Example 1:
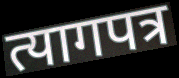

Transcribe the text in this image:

त्‍यागपत्र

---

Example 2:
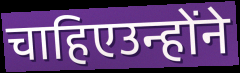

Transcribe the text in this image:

चाहिएउन्होंने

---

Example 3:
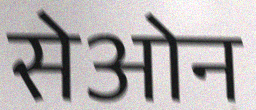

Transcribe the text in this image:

सेओन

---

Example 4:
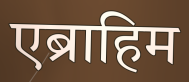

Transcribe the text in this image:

एब्राहिम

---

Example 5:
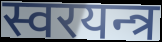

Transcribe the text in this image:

स्वरयन्त्र